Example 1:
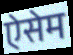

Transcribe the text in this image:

ऐसेम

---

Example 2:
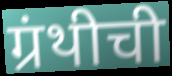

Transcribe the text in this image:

ग्रंथीची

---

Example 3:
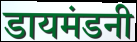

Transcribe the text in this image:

डायमंडनी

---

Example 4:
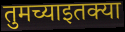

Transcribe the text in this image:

तुमच्याइतक्या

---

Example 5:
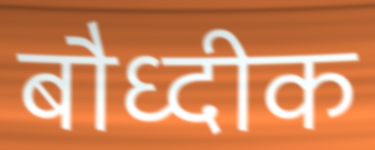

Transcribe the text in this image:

बौध्दीक